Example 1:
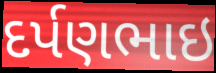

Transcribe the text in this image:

દર્પણભાઇ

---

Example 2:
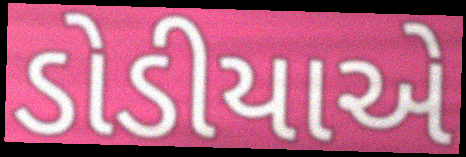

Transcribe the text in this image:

ડોડીયાએ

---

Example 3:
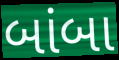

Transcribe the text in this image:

બાંબા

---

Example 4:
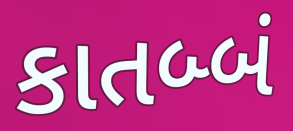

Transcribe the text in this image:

કાતબ્બં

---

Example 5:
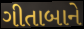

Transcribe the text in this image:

ગીતાબાને